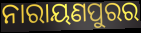
ନାରାୟଣପୁରର